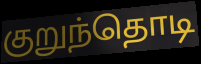
குறுந்தொடி